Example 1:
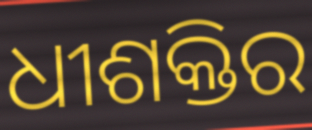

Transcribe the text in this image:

ଧୀଶକ୍ତିର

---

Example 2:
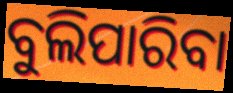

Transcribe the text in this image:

ବୁଲିପାରିବା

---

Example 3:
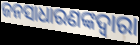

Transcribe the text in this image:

ଜନସାଧାରଣଙ୍କଦ୍ବାରା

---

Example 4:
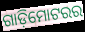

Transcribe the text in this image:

ଗାଡ଼ିମୋଟରର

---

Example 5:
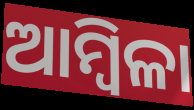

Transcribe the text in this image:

ଆମ୍ବିଳା